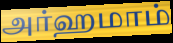
அர்ஹமாம்